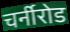
चर्नीरोड